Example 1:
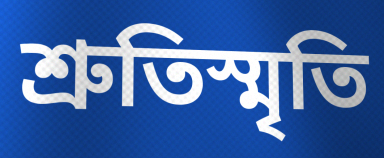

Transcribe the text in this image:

শ্রুতিস্মৃতি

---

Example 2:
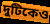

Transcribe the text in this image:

দুটিকেও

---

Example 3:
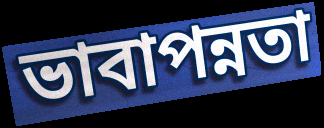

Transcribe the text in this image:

ভাবাপন্নতা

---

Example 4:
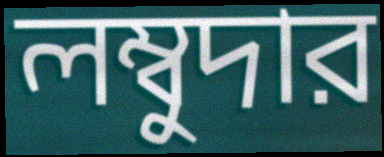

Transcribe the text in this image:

লম্বুদার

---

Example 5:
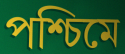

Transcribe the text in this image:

পশ্চিমে